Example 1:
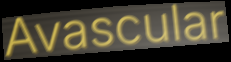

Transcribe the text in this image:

Avascular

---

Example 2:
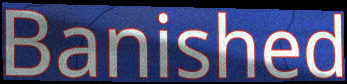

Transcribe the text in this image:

Banished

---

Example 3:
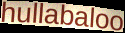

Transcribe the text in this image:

hullabaloo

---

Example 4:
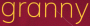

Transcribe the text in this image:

granny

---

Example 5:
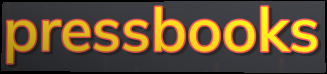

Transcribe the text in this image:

pressbooks